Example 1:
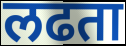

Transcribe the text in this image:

लढता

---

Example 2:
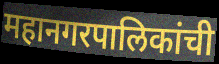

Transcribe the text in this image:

महानगरपालिकांची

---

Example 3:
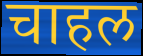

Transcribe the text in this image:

चाहल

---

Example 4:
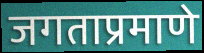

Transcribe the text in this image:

जगताप्रमाणे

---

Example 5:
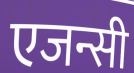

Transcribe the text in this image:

एजन्सी